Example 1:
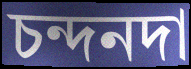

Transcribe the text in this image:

চন্দনদা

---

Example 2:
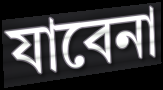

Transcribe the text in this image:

যাবেনা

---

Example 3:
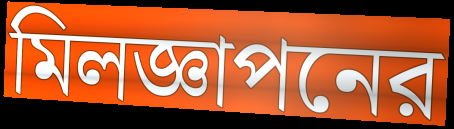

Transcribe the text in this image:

মিলজ্ঞাপনের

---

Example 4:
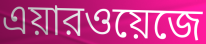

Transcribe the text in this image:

এয়ারওয়েজে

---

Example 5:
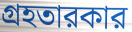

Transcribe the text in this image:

গ্রহতারকার